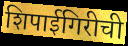
शिपाईगिरीची